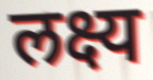
लक्ष्य